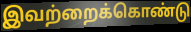
இவற்றைக்கொண்டு